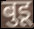
बुडू